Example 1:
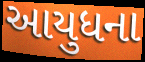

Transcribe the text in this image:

આયુધના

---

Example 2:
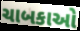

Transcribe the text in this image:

ચાબકાઓ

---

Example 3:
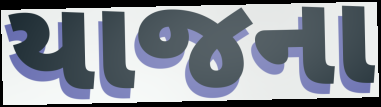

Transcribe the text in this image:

યાજના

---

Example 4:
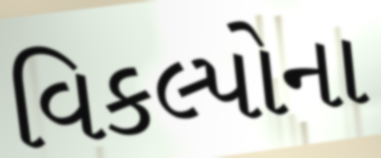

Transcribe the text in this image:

વિકલ્પોના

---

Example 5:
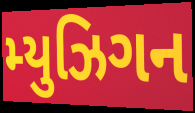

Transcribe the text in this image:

મ્યુઝિગન